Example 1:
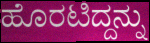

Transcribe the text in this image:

ಹೊರಟಿದ್ದನ್ನು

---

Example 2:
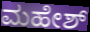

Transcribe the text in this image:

ಮಹೇಶ್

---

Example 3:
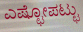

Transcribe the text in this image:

ಎಷ್ಟೋಪಟ್ಟು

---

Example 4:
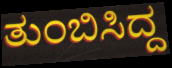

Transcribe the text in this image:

ತುಂಬಿಸಿದ್ದ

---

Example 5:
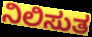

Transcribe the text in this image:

ನಿಲಿಸುತ